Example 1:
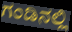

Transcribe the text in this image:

ಗಂಡಿನಲ್ಲಿ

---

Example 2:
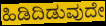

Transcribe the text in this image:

ಹಿಡಿದಿಡುವುದೇ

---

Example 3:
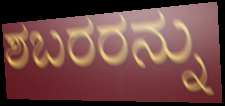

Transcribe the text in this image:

ಶಬರರನ್ನು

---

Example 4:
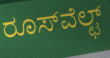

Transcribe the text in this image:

ರೂಸ್‌ವೆಲ್ಟ್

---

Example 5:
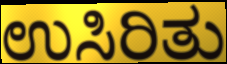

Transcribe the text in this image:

ಉಸಿರಿತು